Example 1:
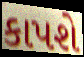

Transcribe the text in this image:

કાપશે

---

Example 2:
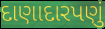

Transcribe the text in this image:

દાણાદારપણું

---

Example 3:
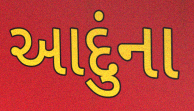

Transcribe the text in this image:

આદુંના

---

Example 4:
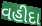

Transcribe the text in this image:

વહીદા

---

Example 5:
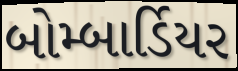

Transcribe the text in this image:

બોમ્બાર્ડિયર